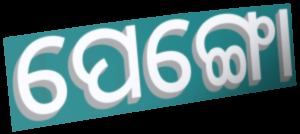
ପେଙ୍ଗୋ